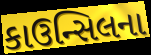
કાઉન્સિલના